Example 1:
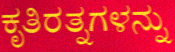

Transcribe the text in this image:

ಕೃತಿರತ್ನಗಳನ್ನು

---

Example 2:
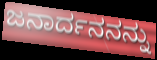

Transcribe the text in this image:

ಜನಾರ್ದನನನ್ನು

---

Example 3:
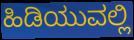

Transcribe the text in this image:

ಹಿಡಿಯುವಲ್ಲಿ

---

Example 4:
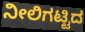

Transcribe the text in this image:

ನೀಲಿಗಟ್ಟಿದ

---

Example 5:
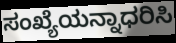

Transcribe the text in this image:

ಸಂಖ್ಯೆಯನ್ನಾಧರಿಸಿ